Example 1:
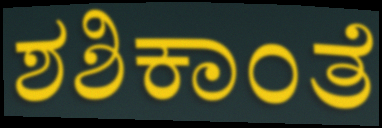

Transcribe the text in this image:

ಶಶಿಕಾಂತೆ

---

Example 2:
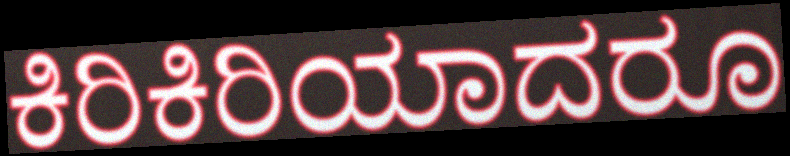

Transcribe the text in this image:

ಕಿರಿಕಿರಿಯಾದರೂ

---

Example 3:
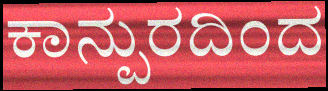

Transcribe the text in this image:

ಕಾನ್ಪುರದಿಂದ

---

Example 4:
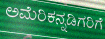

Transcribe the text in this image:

ಅಮೆರಿಕನ್ನಡಿಗರಿಗೆ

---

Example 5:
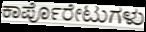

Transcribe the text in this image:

ಕಾರ್ಪೊರೇಟುಗಳು